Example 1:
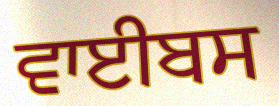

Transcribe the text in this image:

ਵਾਈਬਸ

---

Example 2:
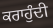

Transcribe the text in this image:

ਕਰਾਹੁੰਦੀ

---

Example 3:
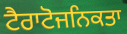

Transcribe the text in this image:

ਟੈਰਾਟੋਜਨਿਕਤਾ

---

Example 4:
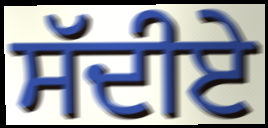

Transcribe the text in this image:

ਸੱਦੀਏ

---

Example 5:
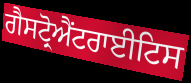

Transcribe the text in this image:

ਗੈਸਟ੍ਰੋਐਂਟਰਾਈਟਿਸ